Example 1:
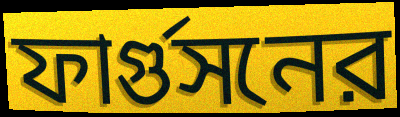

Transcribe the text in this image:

ফার্গুসনের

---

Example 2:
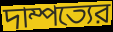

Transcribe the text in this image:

দাম্পত্যের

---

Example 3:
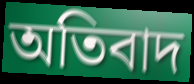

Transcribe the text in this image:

অতিবাদ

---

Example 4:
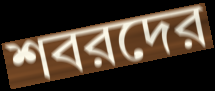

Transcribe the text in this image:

শবরদের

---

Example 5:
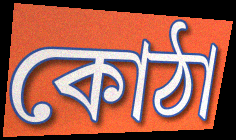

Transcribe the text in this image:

কোঠা